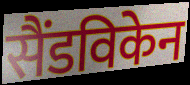
सैंडविकेन